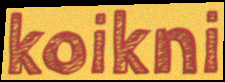
koikni